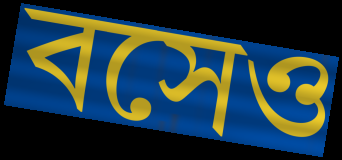
বসেও